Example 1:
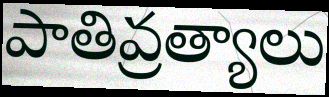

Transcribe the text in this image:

పాతివ్రత్యాలు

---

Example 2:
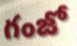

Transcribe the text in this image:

గంజో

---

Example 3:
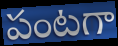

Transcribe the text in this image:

పంటగా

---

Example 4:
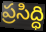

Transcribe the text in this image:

ప్రసిద్ధి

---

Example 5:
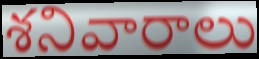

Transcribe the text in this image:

శనివారాలు